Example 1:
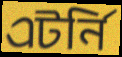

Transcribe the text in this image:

এটর্নি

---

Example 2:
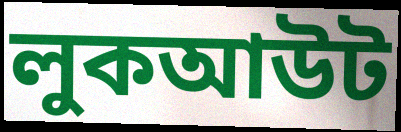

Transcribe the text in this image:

লুকআউট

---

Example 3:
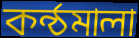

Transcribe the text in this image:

কন্ঠমালা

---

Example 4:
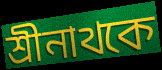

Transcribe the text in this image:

শ্রীনাথকে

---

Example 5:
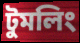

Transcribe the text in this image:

টুমলিং